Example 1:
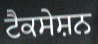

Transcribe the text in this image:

ਟੈਕਸੇਸ਼ਨ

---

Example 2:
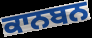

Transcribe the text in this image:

ਕਾਨਬਨ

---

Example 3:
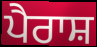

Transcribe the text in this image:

ਪੈਰਾਸ਼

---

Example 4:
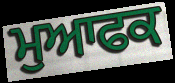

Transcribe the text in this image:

ਮੁਆਫਕ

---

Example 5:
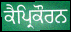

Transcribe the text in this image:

ਕੈਪ੍ਰਿਕੌਰਨ